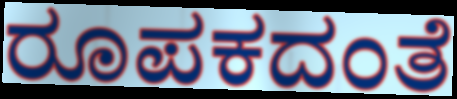
ರೂಪಕದಂತೆ